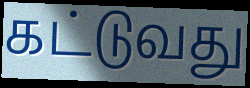
கட்டுவது